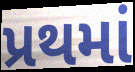
પ્રથમાં